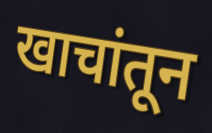
खाचांतून